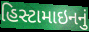
હિસ્ટામાઇનનું